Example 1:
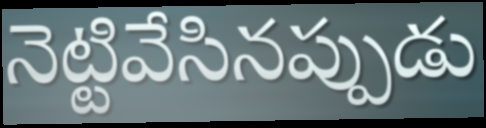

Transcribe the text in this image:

నెట్టివేసినప్పుడు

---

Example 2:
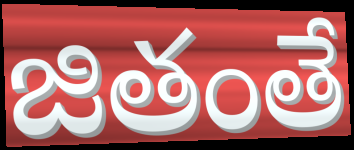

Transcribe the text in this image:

జితంతే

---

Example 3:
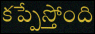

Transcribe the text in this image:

కప్పేస్తోంది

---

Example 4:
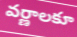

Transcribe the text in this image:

వర్ణాలకూ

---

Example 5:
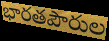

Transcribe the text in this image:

భారతపౌరుల